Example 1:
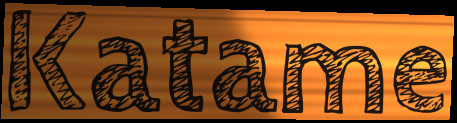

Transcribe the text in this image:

Katame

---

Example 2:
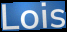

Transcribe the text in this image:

Lois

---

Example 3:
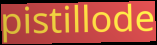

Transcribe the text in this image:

pistillode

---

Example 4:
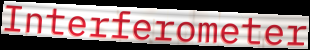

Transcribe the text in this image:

Interferometer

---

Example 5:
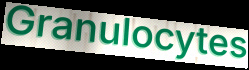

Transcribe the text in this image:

Granulocytes